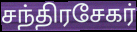
சந்திரசேகர்